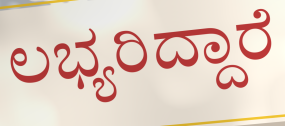
ಲಭ್ಯರಿದ್ದಾರೆ